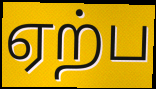
ஏற்ப